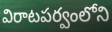
విరాటపర్వంలోని